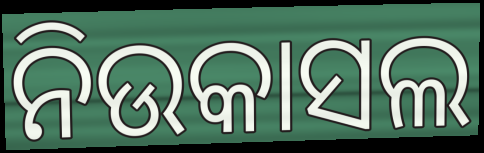
ନିଉକାସଲ